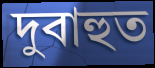
দুবাহুত